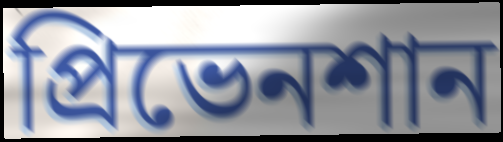
প্রিভেনশান